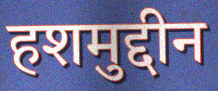
हशमुद्दीन